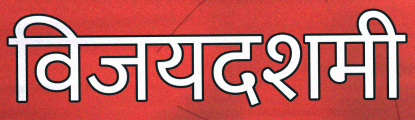
विजयदशमी